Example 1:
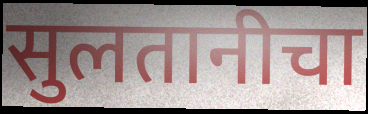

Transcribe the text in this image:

सुलतानीचा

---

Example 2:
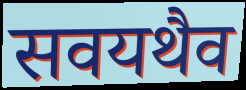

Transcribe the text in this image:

सवयथैव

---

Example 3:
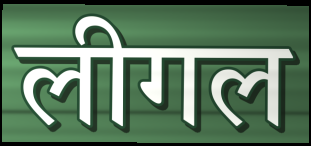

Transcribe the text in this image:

लीगल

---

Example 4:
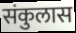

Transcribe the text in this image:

संकुलास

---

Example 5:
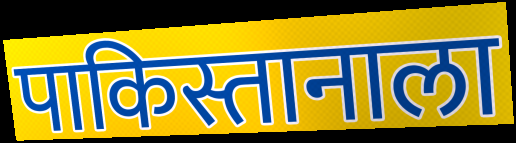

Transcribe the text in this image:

पाकिस्तानाला